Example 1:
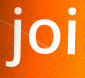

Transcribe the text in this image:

joi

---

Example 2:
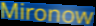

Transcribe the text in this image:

Mironow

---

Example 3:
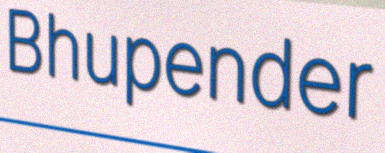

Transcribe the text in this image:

Bhupender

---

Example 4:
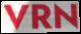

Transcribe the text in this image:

VRN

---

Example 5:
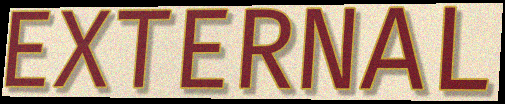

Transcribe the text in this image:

EXTERNAL